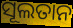
ସୂଲତାନ